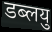
डब्लयु